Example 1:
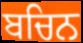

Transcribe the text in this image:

ਬਚਿਨ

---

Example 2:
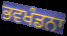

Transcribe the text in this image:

ਭਵਖੰਡਨਾ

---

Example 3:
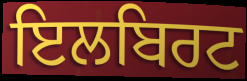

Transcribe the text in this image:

ਇਲਬਿਰਟ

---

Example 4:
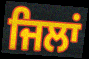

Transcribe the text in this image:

ਜਿਲਾਂ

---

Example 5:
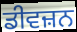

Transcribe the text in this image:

ਡੀਵਜ਼ਨ